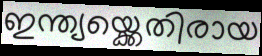
ഇന്ത്യയ്ക്കെതിരായ